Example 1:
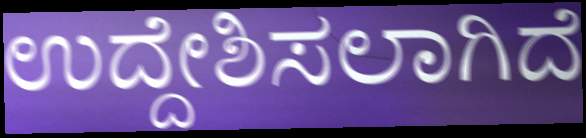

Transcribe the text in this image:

ಉದ್ದೇಶಿಸಲಾಗಿದೆ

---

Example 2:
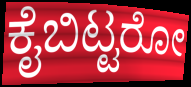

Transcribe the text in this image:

ಕೈಬಿಟ್ಟರೋ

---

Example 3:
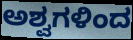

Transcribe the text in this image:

ಅಶ್ವಗಳಿಂದ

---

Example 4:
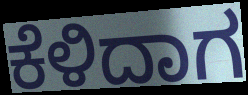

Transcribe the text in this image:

ಕೆಳಿದಾಗ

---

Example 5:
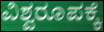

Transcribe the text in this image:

ವಿಶ್ವರೂಪಕ್ಕೆ